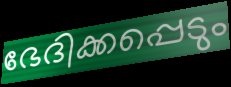
ഭേദിക്കപ്പെടും